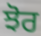
ਝੋਰ